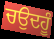
ਚਉਦਹੂੰ